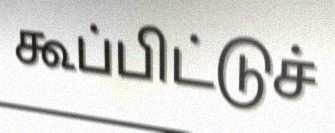
கூப்பிட்டுச்